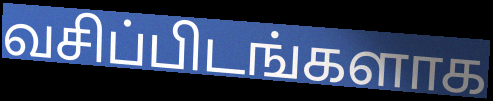
வசிப்பிடங்களாக